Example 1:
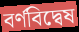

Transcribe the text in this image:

বর্ণবিদ্বেষ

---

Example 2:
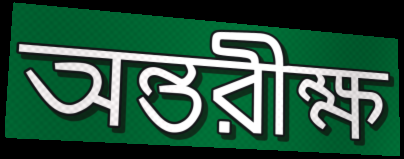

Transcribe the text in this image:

অন্তরীক্ষ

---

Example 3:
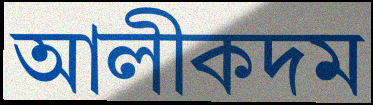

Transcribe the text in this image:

আলীকদম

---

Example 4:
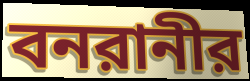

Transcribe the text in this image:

বনরানীর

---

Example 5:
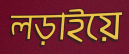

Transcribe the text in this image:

লড়াইয়ে